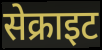
सेक्राइट